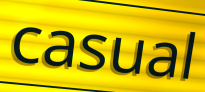
casual